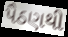
પૈઠણથી